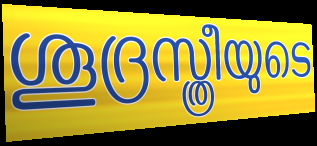
ശൂദ്രസ്ത്രീയുടെ